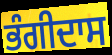
ਭੰਗੀਦਾਸ